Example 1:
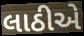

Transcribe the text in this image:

લાઠીએ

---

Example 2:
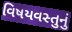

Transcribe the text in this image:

વિષયવસ્તુનું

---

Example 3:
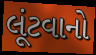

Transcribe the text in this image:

લૂંટવાનો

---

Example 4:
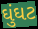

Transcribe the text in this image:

ઘુંઘટ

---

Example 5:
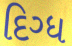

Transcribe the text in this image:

દિગ્ધ